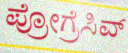
ಪ್ರೋಗ್ರೆಸಿವ್